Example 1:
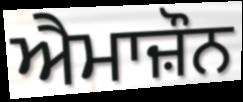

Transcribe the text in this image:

ਐਮਾਜ਼ੌਨ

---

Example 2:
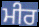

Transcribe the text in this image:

ਮੀਰ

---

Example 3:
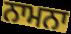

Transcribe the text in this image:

ਨਾਮਨਾ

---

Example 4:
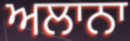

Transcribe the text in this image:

ਅਲਾਨਾ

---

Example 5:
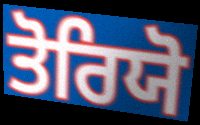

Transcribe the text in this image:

ਤੋਰਿਯੋ